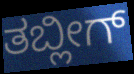
ತಬ್ಲೀಗ್